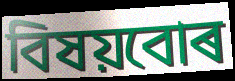
বিষয়বোৰ